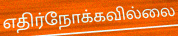
எதிர்நோக்கவில்லை